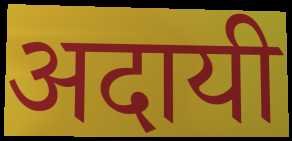
अदायी